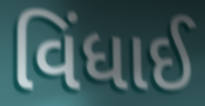
વિંધાઈ